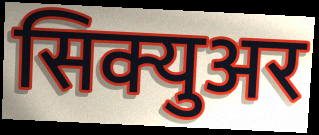
सिक्युअर